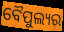
ବୈପୁଲ୍ୟର